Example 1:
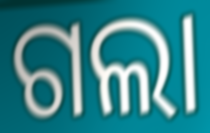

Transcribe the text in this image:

ଗଲା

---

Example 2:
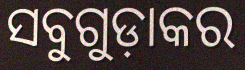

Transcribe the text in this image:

ସବୁଗୁଡ଼ାକର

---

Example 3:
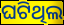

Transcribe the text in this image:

ଘଟିଥିଲ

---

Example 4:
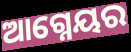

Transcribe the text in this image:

ଆଗ୍ନେୟର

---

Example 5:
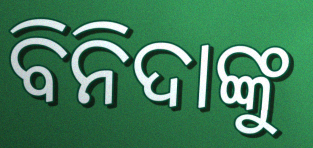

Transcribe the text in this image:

ବିନିଦାଙ୍କୁ